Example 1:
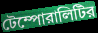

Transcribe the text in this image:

টেম্পোরালিটির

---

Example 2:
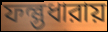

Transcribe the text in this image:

ফল্গুধারায়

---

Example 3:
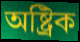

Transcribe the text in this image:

অষ্ট্রিক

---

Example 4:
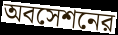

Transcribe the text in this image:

অবসেশনের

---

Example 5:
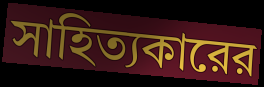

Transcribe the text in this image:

সাহিত্যকারের